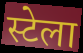
स्टेला